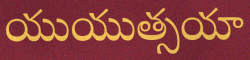
యుయుత్సయా